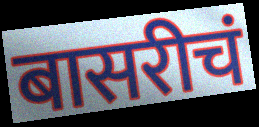
बासरीचं